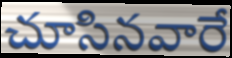
చూసినవారే